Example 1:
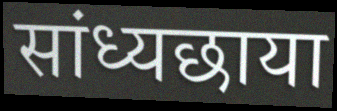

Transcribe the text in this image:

सांध्यछाया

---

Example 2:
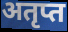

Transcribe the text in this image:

अतृप्त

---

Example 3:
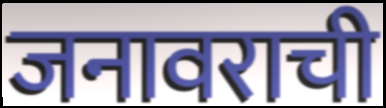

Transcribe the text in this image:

जनावराची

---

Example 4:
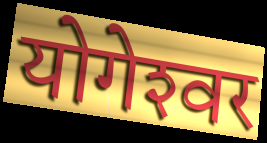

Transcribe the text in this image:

योगेश्वर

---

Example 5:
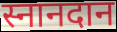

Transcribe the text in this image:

स्नानदान